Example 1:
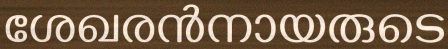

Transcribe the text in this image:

ശേഖരൻനായരുടെ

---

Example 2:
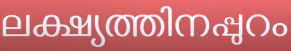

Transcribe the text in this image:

ലക്ഷ്യത്തിനപ്പുറം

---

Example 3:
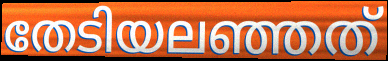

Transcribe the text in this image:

തേടിയലഞ്ഞത്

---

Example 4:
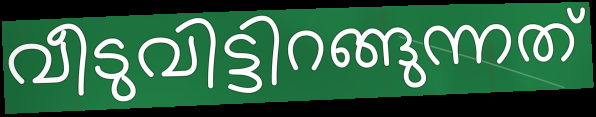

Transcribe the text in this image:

വീടുവിട്ടിറങ്ങുന്നത്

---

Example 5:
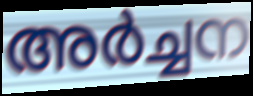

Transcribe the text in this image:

അർച്ചന